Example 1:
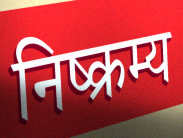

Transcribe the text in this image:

निष्क्रम्य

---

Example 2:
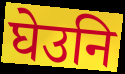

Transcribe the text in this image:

घेउनि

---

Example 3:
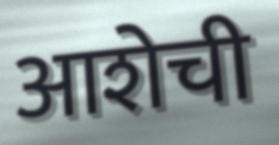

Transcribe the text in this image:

आशेची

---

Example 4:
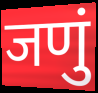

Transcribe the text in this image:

जणुं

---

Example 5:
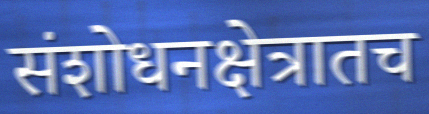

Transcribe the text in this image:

संशोधनक्षेत्रातच